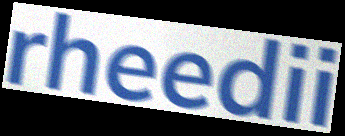
rheedii